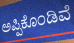
ಅಪ್ಪಿಕೊಂಡಿವೆ